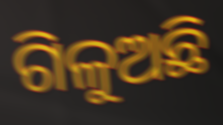
ଗିଳୁଅଛି